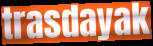
trasdayak